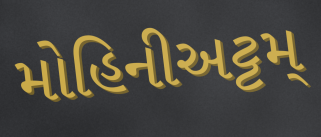
મોહિનીઅટ્ટમ્